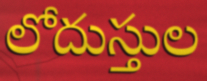
లోదుస్తుల